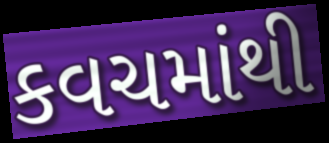
કવચમાંથી